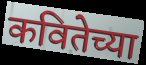
कवितेच्या